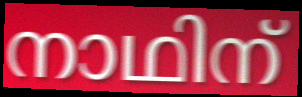
നാഥിന്